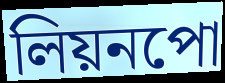
লিয়নপো